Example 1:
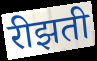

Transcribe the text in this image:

रीझती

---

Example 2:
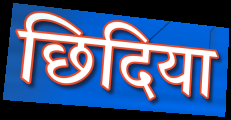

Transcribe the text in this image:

छिदिया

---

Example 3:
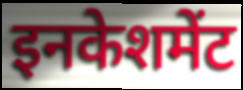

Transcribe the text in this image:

इनकेशमेंट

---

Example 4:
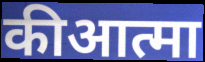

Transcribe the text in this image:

कीआत्मा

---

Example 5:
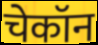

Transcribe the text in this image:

चेकॉन